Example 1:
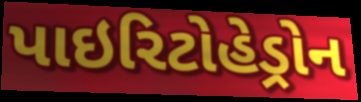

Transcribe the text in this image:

પાઇરિટોહેડ્રોન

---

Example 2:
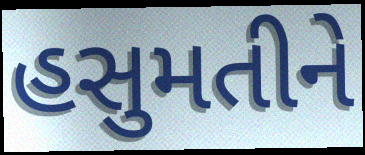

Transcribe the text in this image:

હસુમતીને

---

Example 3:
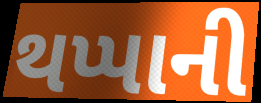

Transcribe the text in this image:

થપ્પાની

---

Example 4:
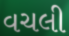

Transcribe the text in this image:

વચલી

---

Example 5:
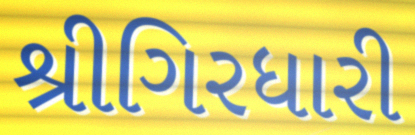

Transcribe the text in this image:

શ્રીગિરધારી